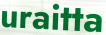
uraitta